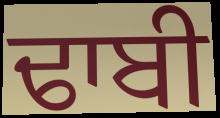
ਢਾਬੀ